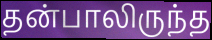
தன்பாலிருந்த